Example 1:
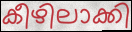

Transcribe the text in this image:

കീഴിലാക്കി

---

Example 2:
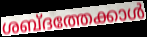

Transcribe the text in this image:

ശബ്ദത്തേക്കാൾ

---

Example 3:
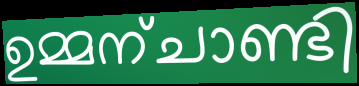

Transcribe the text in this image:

ഉമ്മന്ചാണ്ടി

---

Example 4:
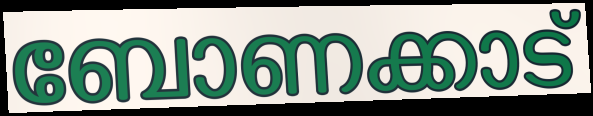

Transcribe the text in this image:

ബോണക്കാട്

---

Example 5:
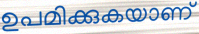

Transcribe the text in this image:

ഉപമിക്കുകയാണ്